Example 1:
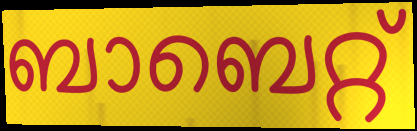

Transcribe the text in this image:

ബാബെറ്റ്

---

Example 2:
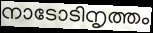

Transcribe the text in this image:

നാടോടിനൃത്തം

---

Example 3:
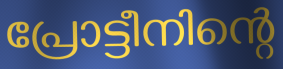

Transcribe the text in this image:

പ്രോട്ടീനിന്റെ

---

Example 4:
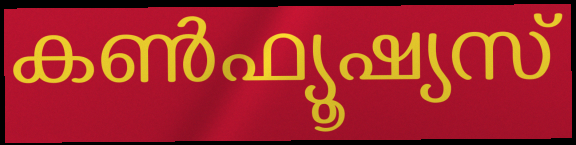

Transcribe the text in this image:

കൺഫ്യൂഷ്യസ്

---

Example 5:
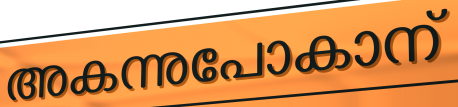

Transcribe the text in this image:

അകന്നുപോകാന്